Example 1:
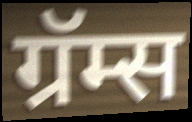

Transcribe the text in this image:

ग्रॅम्स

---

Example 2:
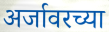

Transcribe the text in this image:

अर्जावरच्या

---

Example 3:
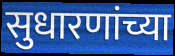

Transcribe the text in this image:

सुधारणांच्या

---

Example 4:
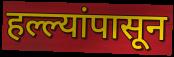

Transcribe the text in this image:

हल्ल्यांपासून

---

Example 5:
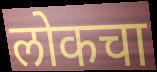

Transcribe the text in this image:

लोकचा